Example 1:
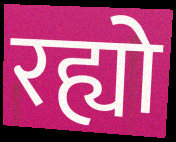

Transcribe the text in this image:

रह्यो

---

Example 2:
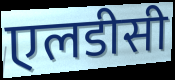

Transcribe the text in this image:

एलडीसी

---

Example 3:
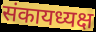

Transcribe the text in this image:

संकायध्यक्ष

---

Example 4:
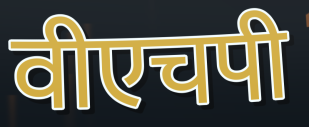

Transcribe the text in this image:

वीएचपी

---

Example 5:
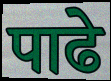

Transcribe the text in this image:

पाढे